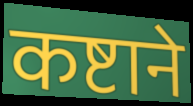
कष्टाने